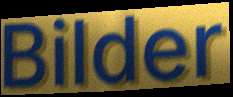
Bilder